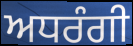
ਅਧਰੰਗੀ